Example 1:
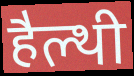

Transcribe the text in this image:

हैल्थी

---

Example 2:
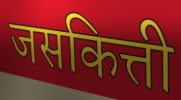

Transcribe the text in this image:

जसकित्ती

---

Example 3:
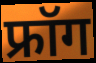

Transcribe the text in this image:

फ्रॉग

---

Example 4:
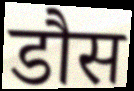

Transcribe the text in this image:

डौस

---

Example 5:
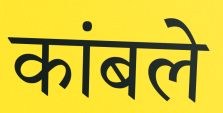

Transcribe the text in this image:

कांबले